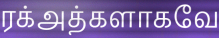
ரக்அத்களாகவே